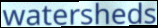
watersheds